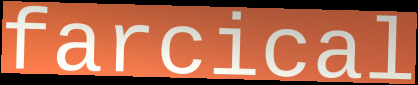
farcical